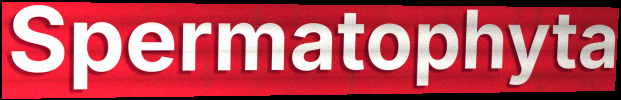
Spermatophyta